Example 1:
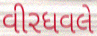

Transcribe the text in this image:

વીરધવલે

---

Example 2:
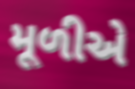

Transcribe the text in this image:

મૂળીએ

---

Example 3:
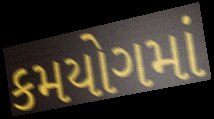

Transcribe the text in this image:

કમયોગમાં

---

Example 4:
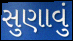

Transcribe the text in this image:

સુણાવું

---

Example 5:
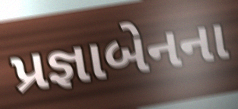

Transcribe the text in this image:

પ્રજ્ઞાબેનના